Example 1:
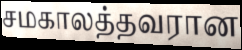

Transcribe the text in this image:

சமகாலத்தவரான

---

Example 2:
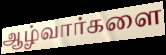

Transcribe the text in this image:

ஆழ்வார்களை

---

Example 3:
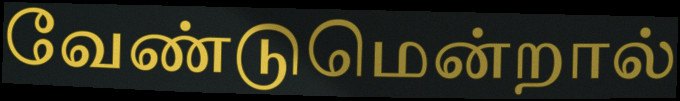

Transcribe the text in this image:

வேண்டுமென்றால்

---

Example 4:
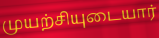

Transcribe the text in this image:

முயற்சியுடையார்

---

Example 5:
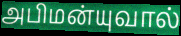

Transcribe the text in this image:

அபிமன்யுவால்